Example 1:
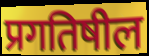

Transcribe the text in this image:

प्रगतिषील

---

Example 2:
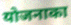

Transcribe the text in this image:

योजनाका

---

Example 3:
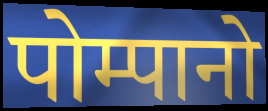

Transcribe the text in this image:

पोम्पानो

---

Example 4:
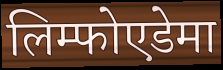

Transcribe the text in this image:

लिम्फोएडेमा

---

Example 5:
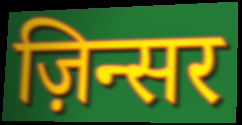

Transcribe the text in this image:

ज़िन्सर